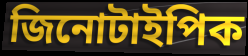
জিনোটাইপিক